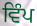
ਵਿੰਪ